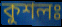
কুশলঃ